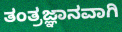
ತಂತ್ರಜ್ಞಾನವಾಗಿ